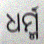
ଧର୍ମ୍ମ